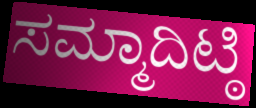
ಸಮ್ಮಾದಿಟ್ಠಿ